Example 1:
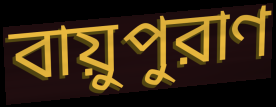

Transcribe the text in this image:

বায়ুপুরাণ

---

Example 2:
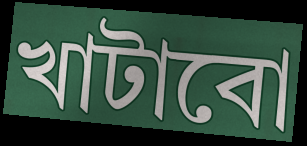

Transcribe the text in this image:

খাটাবো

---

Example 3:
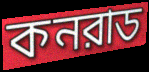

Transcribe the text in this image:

কনরাড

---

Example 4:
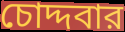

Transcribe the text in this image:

চোদ্দবার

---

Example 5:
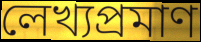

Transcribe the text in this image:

লেখ্যপ্রমাণ